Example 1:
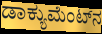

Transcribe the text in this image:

ಡಾಕ್ಯುಮೆಂಟ್‌ನ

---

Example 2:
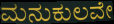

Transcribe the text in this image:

ಮನುಕುಲವೇ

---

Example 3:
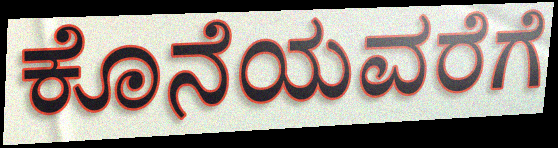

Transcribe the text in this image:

ಕೊನೆಯವರೆಗೆ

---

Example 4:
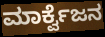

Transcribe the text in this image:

ಮಾರ್ಕ್ವೆಜನ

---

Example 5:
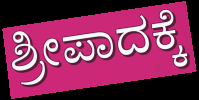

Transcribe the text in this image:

ಶ್ರೀಪಾದಕ್ಕೆ